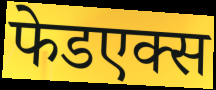
फेडएक्स